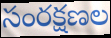
సంరక్షణల